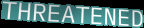
THREATENED